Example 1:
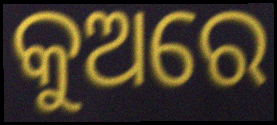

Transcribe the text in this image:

କୁଅରେ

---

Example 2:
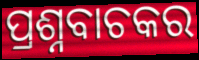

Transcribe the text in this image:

ପ୍ରଶ୍ନବାଚକର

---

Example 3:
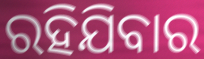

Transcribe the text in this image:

ରହିଯିବାର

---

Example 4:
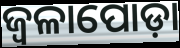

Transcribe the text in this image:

ଜ୍ୱଳାପୋଡ଼ା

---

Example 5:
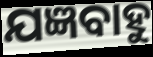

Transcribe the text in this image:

ଯଜ୍ଞବାହୁ